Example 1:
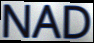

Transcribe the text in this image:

NAD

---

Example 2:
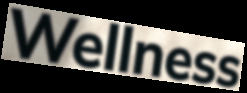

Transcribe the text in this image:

Wellness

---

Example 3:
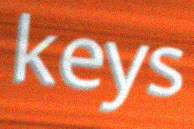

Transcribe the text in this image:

keys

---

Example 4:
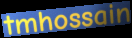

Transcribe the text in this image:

tmhossain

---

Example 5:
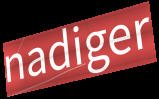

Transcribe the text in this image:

nadiger